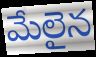
మేలైన